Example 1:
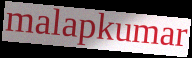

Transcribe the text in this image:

malapkumar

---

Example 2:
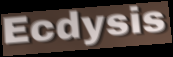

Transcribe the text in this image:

Ecdysis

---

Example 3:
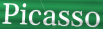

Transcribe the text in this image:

Picasso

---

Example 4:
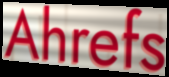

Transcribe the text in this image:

Ahrefs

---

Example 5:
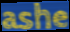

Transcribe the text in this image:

ashe